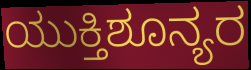
ಯುಕ್ತಿಶೂನ್ಯರ